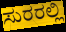
ಸುರರಲ್ಲಿ